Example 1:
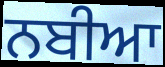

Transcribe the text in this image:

ਨਬੀਆ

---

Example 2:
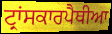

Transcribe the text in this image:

ਟ੍ਰਾਂਸਕਾਰਪੈਥੀਆ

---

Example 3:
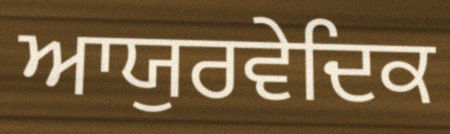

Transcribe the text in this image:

ਆਯੁਰਵੇਦਿਕ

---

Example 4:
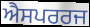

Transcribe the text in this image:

ਐਸਪਰਰਜ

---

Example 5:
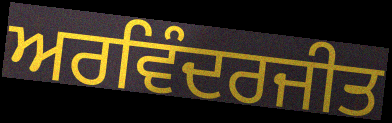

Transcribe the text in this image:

ਅਰਵਿੰਦਰਜੀਤ